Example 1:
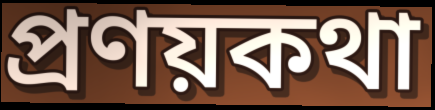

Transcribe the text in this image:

প্রণয়কথা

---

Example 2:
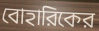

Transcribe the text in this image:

বোহারিকের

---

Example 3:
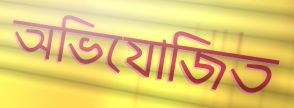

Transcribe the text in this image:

অভিযোজিত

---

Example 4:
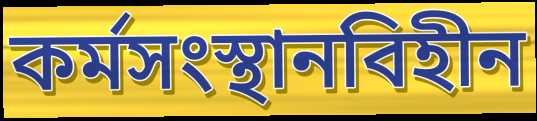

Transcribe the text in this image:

কর্মসংস্থানবিহীন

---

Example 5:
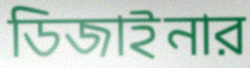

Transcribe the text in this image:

ডিজাইনার